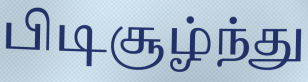
பிடிசூழ்ந்து